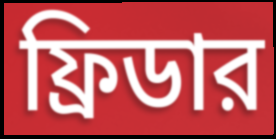
ফ্রিডার